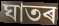
ঘাতৰ